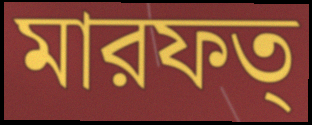
মারফত্